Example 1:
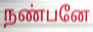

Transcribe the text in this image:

நண்பனே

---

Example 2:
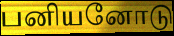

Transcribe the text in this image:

பனியனோடு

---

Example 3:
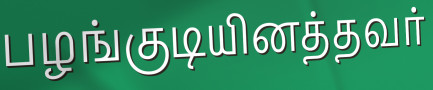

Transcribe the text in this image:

பழங்குடியினத்தவர்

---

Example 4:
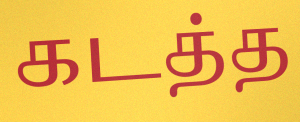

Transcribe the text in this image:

கடத்த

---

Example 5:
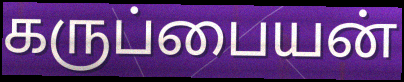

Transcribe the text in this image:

கருப்பையன்